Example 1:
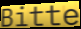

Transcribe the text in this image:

Bitte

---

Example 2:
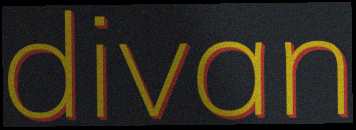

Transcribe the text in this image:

divan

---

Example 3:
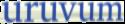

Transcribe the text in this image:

uruvum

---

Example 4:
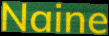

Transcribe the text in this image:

Naine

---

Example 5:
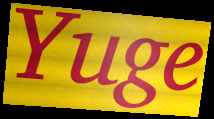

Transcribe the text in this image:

Yuge